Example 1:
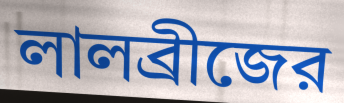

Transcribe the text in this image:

লালব্রীজের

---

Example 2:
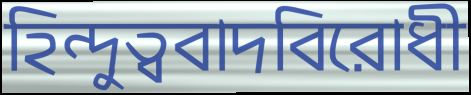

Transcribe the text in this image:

হিন্দুত্ববাদবিরোধী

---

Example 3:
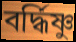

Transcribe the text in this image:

বর্দ্ধিষ্ণু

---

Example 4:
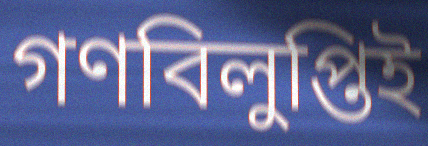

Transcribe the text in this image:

গণবিলুপ্তিই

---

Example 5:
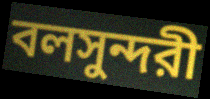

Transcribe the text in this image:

বলসুন্দরী